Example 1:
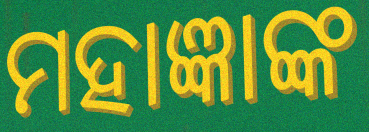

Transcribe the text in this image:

ମହାଜ୍ଞାଙ୍କ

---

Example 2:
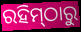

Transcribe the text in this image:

ରହିମ୍‌ଠାରୁ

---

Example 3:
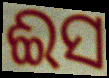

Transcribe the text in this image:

ଈସ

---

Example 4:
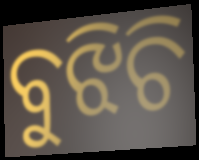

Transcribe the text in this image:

ବୁଝିଚି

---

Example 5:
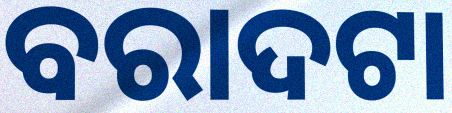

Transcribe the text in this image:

ବରାଦଟା